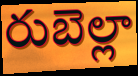
రుబెల్లా